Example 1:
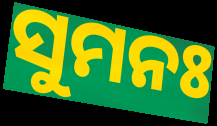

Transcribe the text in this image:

ସୁମନଃ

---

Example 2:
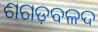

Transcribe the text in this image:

ଶଗଡ଼ବଳଦ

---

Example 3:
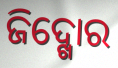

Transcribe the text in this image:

ଜିଦ୍ଖୋର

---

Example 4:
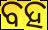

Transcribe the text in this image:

ବହ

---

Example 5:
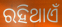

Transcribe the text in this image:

ରହିଥାଏଁ